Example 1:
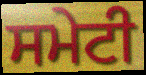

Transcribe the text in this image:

ਸਮੇਟੀ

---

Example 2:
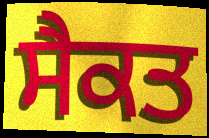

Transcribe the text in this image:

ਸੈਕਤ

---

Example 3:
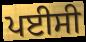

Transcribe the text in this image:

ਪਈਸੀ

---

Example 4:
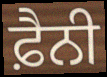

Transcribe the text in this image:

ਫ਼ੈਨੀ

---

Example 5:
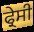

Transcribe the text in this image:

ਫ੍ਰੇਸੀ